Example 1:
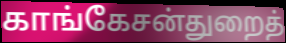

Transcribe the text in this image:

காங்கேசன்துறைத்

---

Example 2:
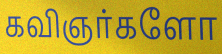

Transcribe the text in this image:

கவிஞர்களோ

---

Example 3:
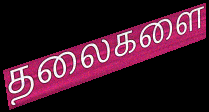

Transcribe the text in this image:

தலைகளை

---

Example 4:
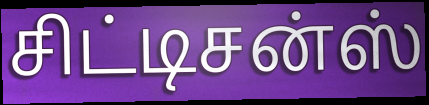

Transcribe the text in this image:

சிட்டிசன்ஸ்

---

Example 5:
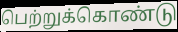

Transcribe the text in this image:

பெற்றுக்கொண்டு